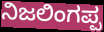
ನಿಜಲಿಂಗಪ್ಪ